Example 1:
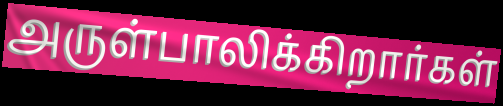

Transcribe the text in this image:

அருள்பாலிக்கிறார்கள்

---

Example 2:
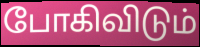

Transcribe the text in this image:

போகிவிடும்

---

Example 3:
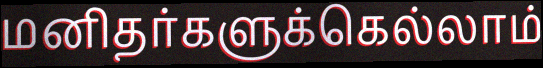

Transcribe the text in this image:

மனிதர்களுக்கெல்லாம்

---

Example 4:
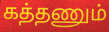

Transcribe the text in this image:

கத்தணும்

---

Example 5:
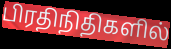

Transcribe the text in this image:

பிரதிநிதிகளில்